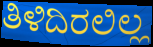
ತಿಳಿದಿರಲಿಲ್ಲ